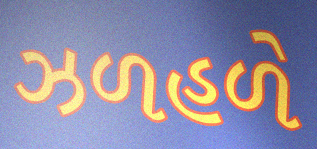
ઝળહળે